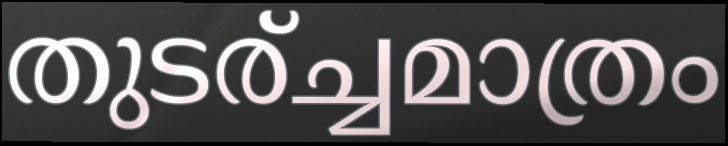
തുടര്ച്ചമാത്രം